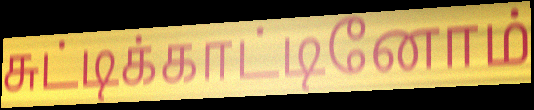
சுட்டிக்காட்டினோம்